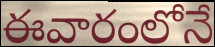
ఈవారంలోనే